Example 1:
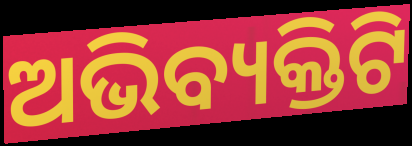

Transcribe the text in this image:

ଅଭିବ୍ୟକ୍ତିଟି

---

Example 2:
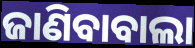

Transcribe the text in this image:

ଜାଣିବାବାଲା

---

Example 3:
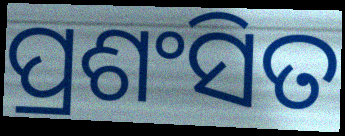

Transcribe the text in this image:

ପ୍ରଶଂସିତ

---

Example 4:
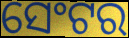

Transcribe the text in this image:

ସେଂଟର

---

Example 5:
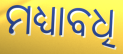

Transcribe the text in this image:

ମଧ୍ୟାବଧି